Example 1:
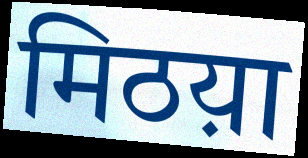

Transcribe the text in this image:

मिठय़ा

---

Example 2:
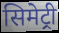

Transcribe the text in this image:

सिमेट्री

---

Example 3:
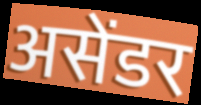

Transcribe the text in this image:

असेंडर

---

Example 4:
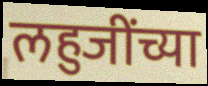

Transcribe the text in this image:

लहुजींच्या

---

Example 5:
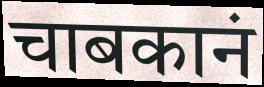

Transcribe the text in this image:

चाबकानं